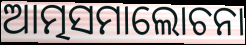
ଆତ୍ମସମାଲୋଚନା